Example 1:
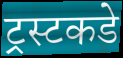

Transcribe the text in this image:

ट्रस्टकडे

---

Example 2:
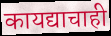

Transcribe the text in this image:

कायद्याचाही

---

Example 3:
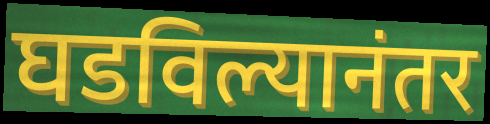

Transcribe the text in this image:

घडविल्यानंतर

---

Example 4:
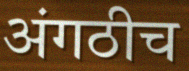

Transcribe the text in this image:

अंगठीच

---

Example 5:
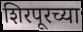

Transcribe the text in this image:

शिरपूरच्या